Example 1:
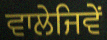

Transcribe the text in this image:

ਵਾਲੇਜਿਵੇਂ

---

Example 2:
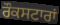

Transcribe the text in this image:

ਰੌਕਸਟਾਰਾਂ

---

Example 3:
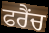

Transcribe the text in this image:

ਫਰੈਂਚ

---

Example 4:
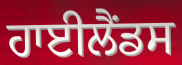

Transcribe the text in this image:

ਹਾਈਲੈਂਡਸ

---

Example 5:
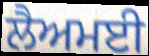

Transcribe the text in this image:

ਲੈਅਮਈ